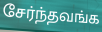
சேர்ந்தவங்க